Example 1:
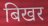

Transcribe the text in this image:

बिखर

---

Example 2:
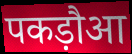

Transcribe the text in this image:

पकड़ौआ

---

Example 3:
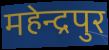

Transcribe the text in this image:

महेन्द्रपुर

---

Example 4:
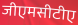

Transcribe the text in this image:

जीएमसीटीए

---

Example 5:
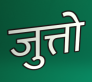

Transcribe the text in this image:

जुत्तो